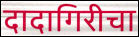
दादागिरीचा